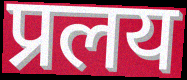
प्रलय